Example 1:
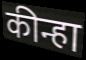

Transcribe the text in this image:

कीन्हा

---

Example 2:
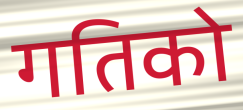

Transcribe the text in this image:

गतिको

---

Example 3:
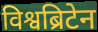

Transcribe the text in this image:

विश्वब्रिटेन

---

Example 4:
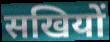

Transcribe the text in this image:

सखियों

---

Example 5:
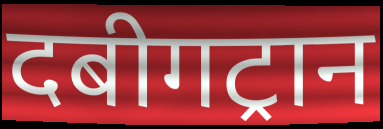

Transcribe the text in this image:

दबीगट्रान